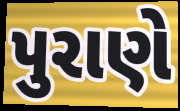
પુરાણે